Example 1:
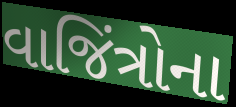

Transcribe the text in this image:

વાજિંત્રોના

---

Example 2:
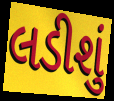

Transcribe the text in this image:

લડીશું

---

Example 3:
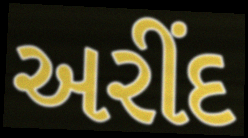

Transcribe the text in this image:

અરીંદ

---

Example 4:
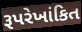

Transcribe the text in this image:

રૂપરેખાંકિત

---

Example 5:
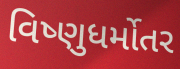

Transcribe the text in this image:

વિષ્ણુધર્મોતર